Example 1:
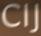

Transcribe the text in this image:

CIJ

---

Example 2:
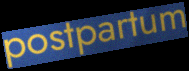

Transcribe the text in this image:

postpartum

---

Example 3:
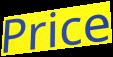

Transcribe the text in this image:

Price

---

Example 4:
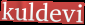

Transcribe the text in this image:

kuldevi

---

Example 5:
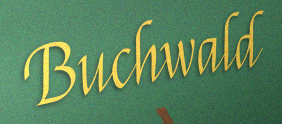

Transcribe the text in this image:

Buchwald